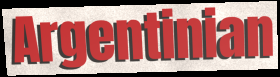
Argentinian